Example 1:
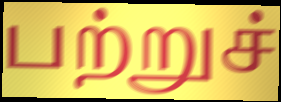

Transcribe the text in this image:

பற்றுச்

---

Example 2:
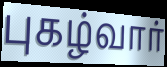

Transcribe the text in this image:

புகழ்வார்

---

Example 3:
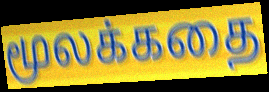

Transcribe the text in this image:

மூலக்கதை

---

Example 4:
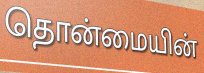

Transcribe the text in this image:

தொன்மையின்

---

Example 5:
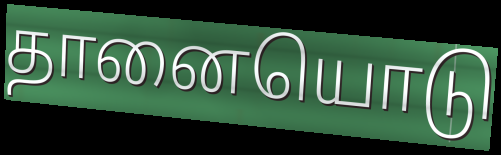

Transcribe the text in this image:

தானையொடு